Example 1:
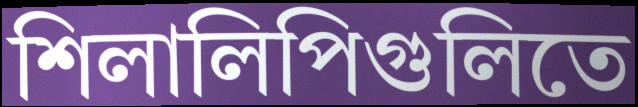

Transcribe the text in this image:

শিলালিপিগুলিতে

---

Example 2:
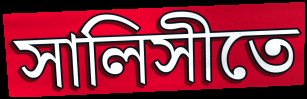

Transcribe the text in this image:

সালিসীতে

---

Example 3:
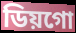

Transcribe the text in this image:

ডিয়গো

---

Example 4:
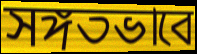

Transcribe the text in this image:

সঙ্গতভাবে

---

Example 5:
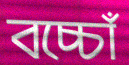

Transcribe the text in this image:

বচ্চোঁ